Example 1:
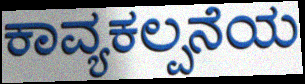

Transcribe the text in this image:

ಕಾವ್ಯಕಲ್ಪನೆಯ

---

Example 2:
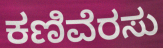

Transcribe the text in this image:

ಕಣಿವೆರಸು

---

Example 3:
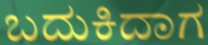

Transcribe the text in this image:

ಬದುಕಿದಾಗ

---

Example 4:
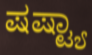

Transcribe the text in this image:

ಷಷ್ಟ್ಯಾ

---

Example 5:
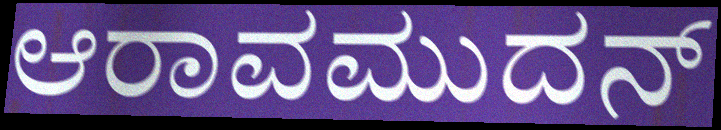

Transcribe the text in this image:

ಆರಾವಮುದನ್